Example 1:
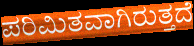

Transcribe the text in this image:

ಪರಿಮಿತವಾಗಿರುತ್ತದೆ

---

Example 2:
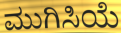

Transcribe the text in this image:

ಮುಗಿಸಿಯೆ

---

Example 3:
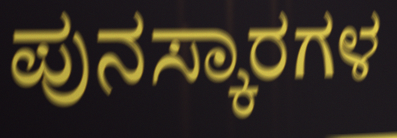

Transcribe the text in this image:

ಪುನಸ್ಕಾರಗಳ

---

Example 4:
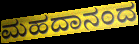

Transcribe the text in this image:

ಮಹದಾನಂದ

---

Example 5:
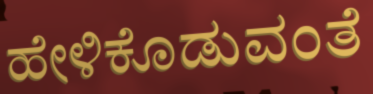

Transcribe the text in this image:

ಹೇಳಿಕೊಡುವಂತೆ